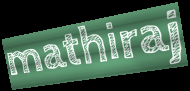
mathiraj